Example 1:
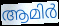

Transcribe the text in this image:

ആമിർ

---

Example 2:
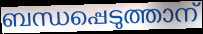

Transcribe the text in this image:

ബന്ധപ്പെടുത്താന്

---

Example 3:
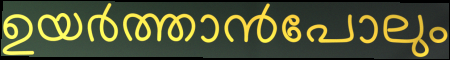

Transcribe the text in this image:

ഉയർത്താൻപോലും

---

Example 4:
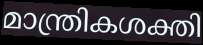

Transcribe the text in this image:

മാന്ത്രികശക്തി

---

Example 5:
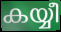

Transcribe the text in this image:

കയ്യീ